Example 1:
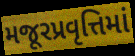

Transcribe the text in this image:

મજૂરપ્રવૃત્તિમાં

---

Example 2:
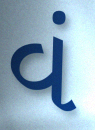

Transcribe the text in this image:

વં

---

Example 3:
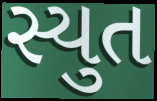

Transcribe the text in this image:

સ્યુત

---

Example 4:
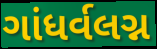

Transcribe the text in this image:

ગાંધર્વલગ્ન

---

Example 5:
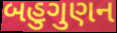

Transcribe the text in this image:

બહુગુણન